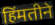
हिंमतीने